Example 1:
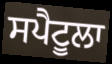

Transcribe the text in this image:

ਸਪੈਟੂਲਾ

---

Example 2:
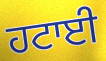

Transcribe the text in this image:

ਹਟਾਈ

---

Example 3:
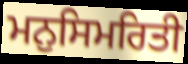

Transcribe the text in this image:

ਮਨੁਸਿਮਰਿਤੀ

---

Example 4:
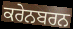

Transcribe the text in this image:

ਕਰੇਨਬਰਨ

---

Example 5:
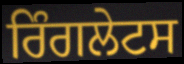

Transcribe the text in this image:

ਰਿੰਗਲੇਟਸ